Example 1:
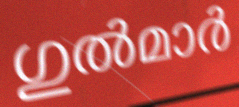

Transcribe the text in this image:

ഗുൽമാർ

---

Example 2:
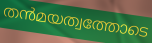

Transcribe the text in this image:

തൻമയത്വത്തോടെ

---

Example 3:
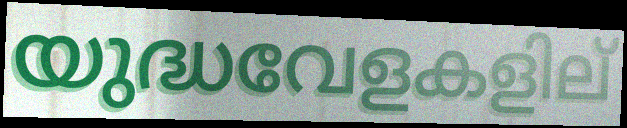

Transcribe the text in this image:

യുദ്ധവേളകളില്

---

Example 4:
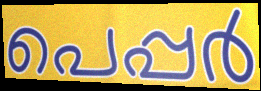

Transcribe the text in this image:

പെപ്പർ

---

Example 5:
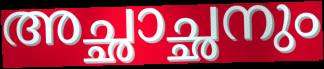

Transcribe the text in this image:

അച്ഛാച്ഛനും